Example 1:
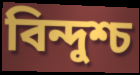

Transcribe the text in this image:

বিন্দুশ্চ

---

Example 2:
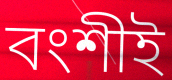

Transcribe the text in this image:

বংশীই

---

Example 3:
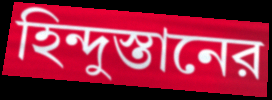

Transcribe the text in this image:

হিন্দুস্তানের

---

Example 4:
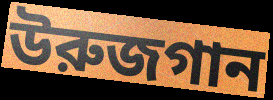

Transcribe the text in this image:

উরুজগান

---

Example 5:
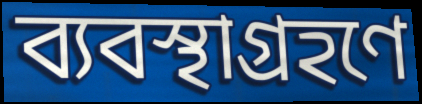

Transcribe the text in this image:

ব্যবস্থাগ্রহণে